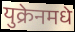
युक्रेनमधे